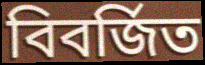
বিবর্জিত